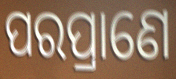
ପରପ୍ରାଣେ